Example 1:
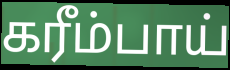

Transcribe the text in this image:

கரீம்பாய்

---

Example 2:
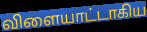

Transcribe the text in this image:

விளையாட்டாகிய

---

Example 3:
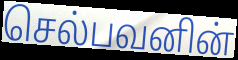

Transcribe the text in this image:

செல்பவனின்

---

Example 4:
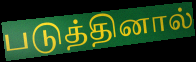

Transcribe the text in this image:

படுத்தினால்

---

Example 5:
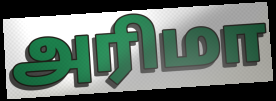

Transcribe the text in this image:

அரிமா